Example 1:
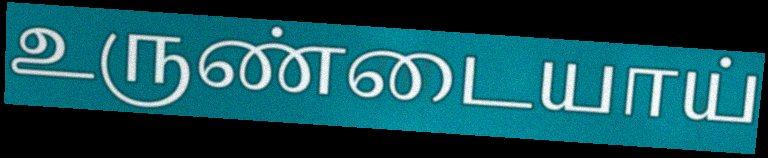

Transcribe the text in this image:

உருண்டையாய்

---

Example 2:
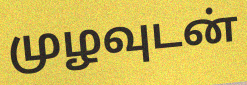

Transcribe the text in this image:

முழவுடன்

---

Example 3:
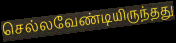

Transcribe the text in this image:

செல்லவேண்டியிருந்தது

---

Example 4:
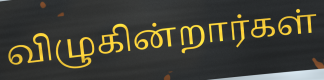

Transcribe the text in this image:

விழுகின்றார்கள்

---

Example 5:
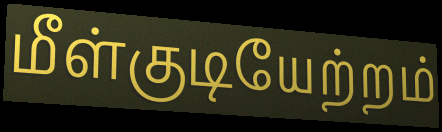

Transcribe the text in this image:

மீள்குடியேற்றம்